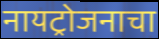
नायट्रोजनाचा